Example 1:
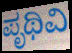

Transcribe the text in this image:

ಪೃಥಿವಿ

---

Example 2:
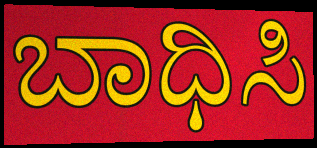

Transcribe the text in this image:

ಬಾಧಿಸಿ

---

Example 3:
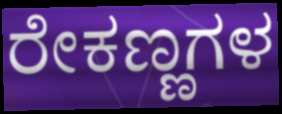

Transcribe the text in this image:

ರೇಕಣ್ಣಗಳ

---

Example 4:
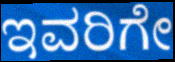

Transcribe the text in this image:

ಇವರಿಗೇ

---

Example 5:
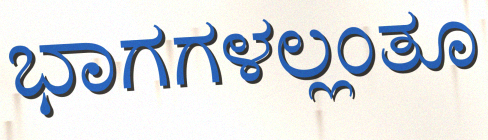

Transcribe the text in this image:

ಭಾಗಗಳಲ್ಲಂತೂ